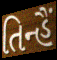
તિન્હૈં